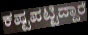
ಕಷ್ಟಪಟ್ಟಿದ್ದಾರೆ